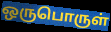
ஒருபொருள்